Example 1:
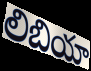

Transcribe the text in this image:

లిబియా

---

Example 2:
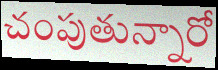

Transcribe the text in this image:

చంపుతున్నారో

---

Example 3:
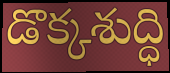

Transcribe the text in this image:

డొక్కశుద్ధి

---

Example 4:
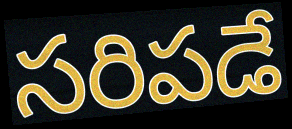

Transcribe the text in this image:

సరిపడే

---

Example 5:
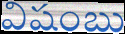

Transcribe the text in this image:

విషంబు